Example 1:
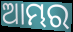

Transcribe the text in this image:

ଆମ୍ଭର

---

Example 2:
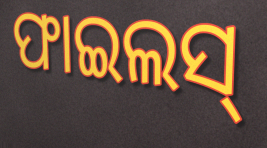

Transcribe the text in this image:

ଫାଇଲସ୍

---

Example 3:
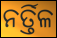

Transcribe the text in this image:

ନର୍ତ୍ତିଳ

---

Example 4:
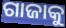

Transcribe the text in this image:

ଗାଜାକୁ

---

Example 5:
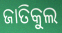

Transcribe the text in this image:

ଜାତିକୁଲ